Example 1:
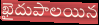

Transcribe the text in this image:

ఖైదుపాలయిన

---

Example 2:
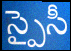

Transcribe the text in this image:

స్పైసీ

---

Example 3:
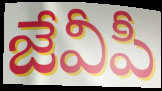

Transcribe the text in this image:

జేవీపీ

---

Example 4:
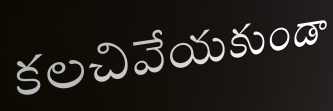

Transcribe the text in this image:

కలచివేయకుండా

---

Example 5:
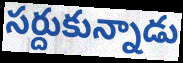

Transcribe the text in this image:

సర్దుకున్నాడు